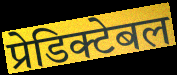
प्रेडिक्टेबल